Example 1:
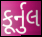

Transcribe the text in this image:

કૂર્નુલ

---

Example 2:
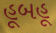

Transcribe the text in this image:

હૂબહૂ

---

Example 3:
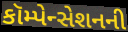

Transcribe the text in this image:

કૉમ્પેન્સેશનની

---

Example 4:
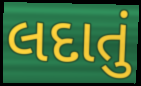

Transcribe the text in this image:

લદાતું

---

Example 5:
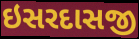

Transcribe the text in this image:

ઇસરદાસજી